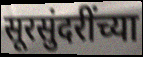
सूरसुंदरींच्या